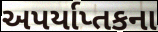
અપર્યાપ્તકના